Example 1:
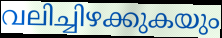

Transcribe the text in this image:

വലിച്ചിഴക്കുകയും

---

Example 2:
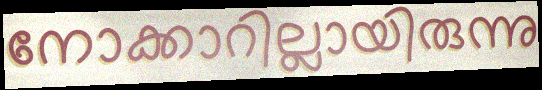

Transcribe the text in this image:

നോക്കാറില്ലായിരുന്നു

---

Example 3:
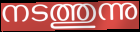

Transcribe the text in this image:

നടത്തുന്നു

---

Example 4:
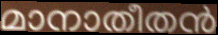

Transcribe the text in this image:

മാനാതീതൻ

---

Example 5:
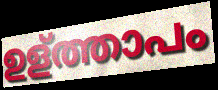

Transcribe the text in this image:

ഉള്ത്താപം